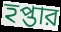
হপ্তার